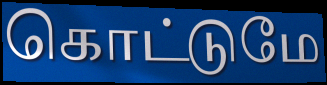
கொட்டுமே